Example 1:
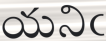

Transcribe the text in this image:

యనిఁ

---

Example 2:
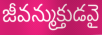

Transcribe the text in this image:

జీవన్ముక్తుడవై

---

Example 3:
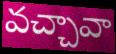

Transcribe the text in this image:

వచ్చావా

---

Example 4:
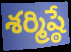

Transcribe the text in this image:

శర్మిష్ఠే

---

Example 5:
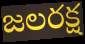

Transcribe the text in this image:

జలరక్ష